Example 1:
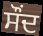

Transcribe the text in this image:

ਸੌਂਦ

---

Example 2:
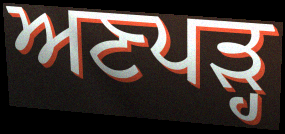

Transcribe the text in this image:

ਅਣਪੜ੍ਹ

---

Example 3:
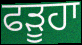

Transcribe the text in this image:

ਫੜੂਹਾ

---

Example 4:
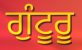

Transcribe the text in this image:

ਗੁੰਟੂਰੂ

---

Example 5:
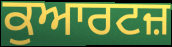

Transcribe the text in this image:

ਕੁਆਰਟਜ਼